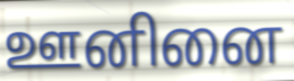
ஊனினை